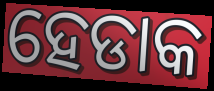
ହେଡାକ